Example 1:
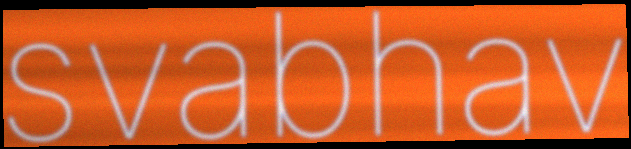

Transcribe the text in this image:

svabhav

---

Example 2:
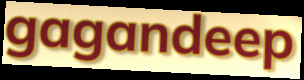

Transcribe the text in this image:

gagandeep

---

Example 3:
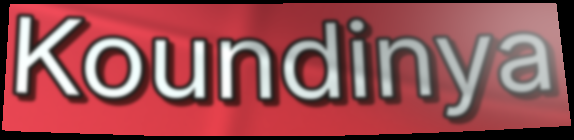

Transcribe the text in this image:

Koundinya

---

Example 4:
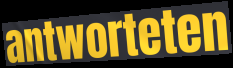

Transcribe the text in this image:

antworteten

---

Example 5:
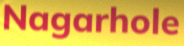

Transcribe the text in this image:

Nagarhole